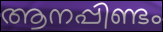
ആനപ്പിണ്ടം